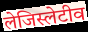
लेजिस्लेटीव